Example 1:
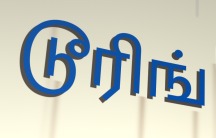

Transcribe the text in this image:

டூரிங்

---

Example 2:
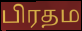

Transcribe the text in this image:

பிரதம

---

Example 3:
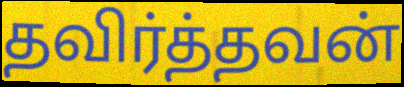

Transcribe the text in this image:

தவிர்த்தவன்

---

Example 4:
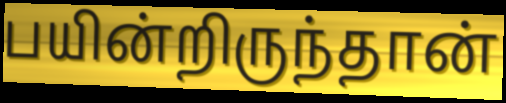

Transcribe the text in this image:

பயின்றிருந்தான்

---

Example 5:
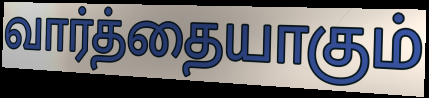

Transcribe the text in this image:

வார்த்தையாகும்